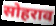
सोहराव